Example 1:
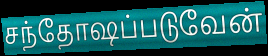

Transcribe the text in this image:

சந்தோஷப்படுவேன்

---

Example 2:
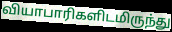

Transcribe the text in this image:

வியாபாரிகளிடமிருந்து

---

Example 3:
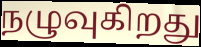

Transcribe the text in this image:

நழுவுகிறது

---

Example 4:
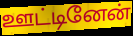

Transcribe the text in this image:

ஊட்டினேன்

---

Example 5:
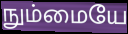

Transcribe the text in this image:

நும்மையே